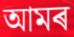
আমৰ